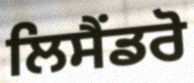
ਲਿਸੈਂਡਰੋ